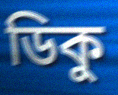
ডিকু